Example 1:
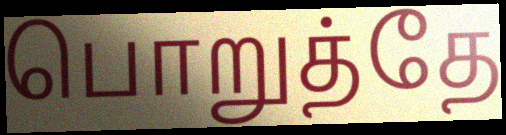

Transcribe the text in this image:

பொறுத்தே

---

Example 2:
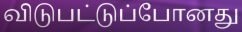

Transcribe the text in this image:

விடுபட்டுப்போனது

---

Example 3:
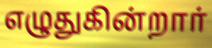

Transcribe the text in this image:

எழுதுகின்றார்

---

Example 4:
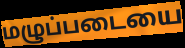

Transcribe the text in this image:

மழுப்படையை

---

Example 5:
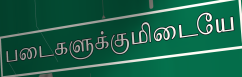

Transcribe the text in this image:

படைகளுக்குமிடையே